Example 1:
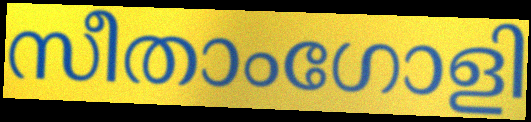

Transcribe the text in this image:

സീതാംഗോളി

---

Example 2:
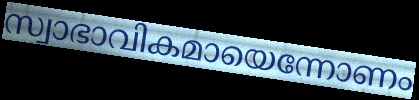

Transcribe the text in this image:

സ്വാഭാവികമായെന്നോണം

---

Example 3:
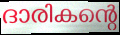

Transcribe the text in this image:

ദാരികന്റെ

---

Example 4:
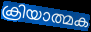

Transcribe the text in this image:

ക്രിയാത്മക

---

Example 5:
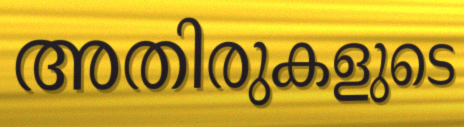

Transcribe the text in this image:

അതിരുകളുടെ